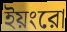
ইয়ংরো